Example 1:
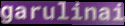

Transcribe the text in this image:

garulinai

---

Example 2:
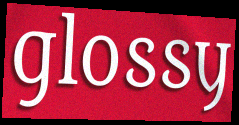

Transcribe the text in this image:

glossy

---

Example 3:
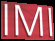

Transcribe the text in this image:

IMI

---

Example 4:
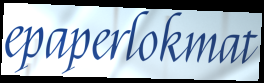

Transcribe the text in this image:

epaperlokmat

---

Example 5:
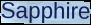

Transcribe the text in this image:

Sapphire